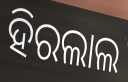
ହିରଲାଲ